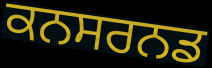
ਕਨਸਰਨਡ